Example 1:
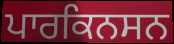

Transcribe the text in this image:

ਪਾਰਕਿਨਸਨ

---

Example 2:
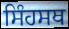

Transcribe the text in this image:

ਸਿੰਹਸਥ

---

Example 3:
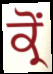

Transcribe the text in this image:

ਕ੍ਰੋਂ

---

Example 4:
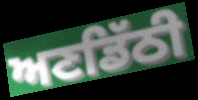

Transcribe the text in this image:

ਅਣਡਿੱਠੀ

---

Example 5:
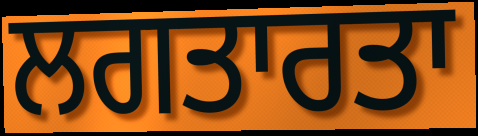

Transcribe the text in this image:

ਲਗਤਾਰਤਾ